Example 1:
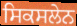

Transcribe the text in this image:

ਸਿਕਸਲੇਨ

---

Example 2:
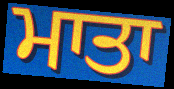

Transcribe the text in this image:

ਮਾਤਾ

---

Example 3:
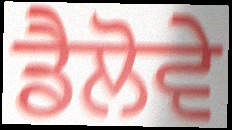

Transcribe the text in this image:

ਡੈਲੋਵੇ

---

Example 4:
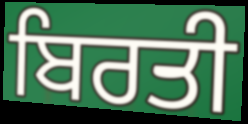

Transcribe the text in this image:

ਬਿਰਤੀ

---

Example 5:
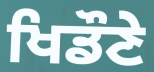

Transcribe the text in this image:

ਖਿਡੌਣੇ